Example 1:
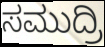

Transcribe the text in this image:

ಸಮುದ್ರಿ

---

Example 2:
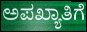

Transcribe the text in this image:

ಅಪಖ್ಯಾತಿಗೆ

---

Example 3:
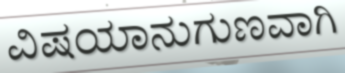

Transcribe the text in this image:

ವಿಷಯಾನುಗುಣವಾಗಿ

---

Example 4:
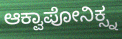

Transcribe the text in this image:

ಆಕ್ವಾಪೋನಿಕ್ಸ್ನ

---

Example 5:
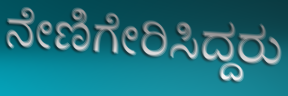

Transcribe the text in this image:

ನೇಣಿಗೇರಿಸಿದ್ದರು